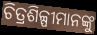
ଚିତ୍ରଶିଳ୍ପୀମାନଙ୍କୁ